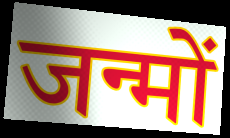
जन्मों